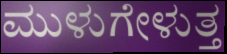
ಮುಳುಗೇಳುತ್ತ